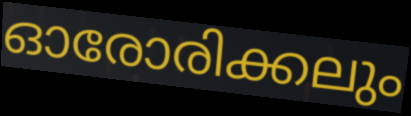
ഓരോരിക്കലും